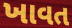
ખાવત